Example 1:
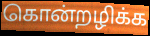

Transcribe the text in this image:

கொன்றழிக்க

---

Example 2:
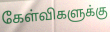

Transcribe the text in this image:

கேள்விகளுக்கு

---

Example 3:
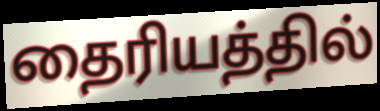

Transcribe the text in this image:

தைரியத்தில்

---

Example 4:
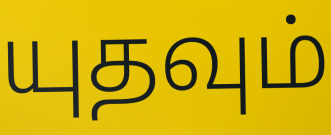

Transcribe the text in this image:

யுதவும்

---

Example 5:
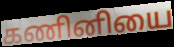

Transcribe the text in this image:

கணினியை